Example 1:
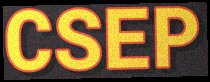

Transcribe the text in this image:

CSEP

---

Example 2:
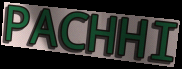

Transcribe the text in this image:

PACHHI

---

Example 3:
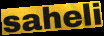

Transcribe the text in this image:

saheli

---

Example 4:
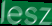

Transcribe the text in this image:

lesz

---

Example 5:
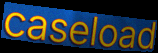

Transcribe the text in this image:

caseload